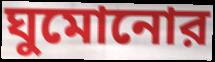
ঘুমোনোর